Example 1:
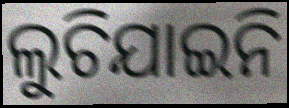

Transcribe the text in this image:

ଲୁଚିଯାଇନି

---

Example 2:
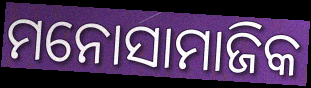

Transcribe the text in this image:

ମନୋସାମାଜିକ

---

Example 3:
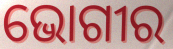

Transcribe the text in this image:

ଭୋଗୀର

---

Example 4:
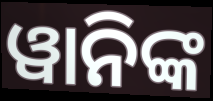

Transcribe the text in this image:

ୱାନିଙ୍କ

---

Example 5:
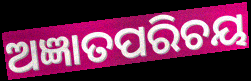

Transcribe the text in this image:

ଅଜ୍ଞାତପରିଚୟ